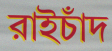
রাইচাঁদ